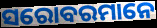
ସରୋବରମାନେ